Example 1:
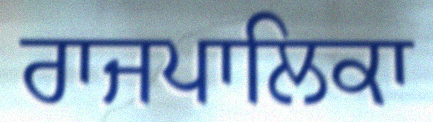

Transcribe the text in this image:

ਰਾਜਪਾਲਿਕਾ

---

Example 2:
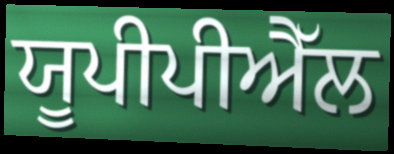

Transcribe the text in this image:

ਯੂਪੀਪੀਐੱਲ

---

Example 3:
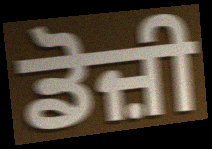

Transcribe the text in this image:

ਡੋਜ਼ੀ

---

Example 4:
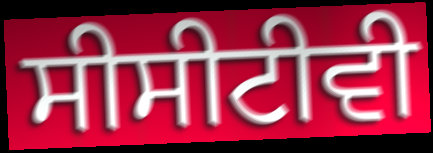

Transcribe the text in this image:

ਸੀਸੀਟੀਵੀ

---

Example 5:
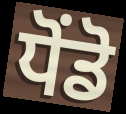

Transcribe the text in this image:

ਧੋਂਡੋ